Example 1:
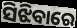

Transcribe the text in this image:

ସିଝିବାରେ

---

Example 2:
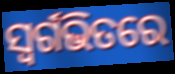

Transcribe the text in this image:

ସ୍ଵର୍ଗଭିତରେ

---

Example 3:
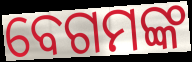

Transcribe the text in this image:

ବେଗମଙ୍କ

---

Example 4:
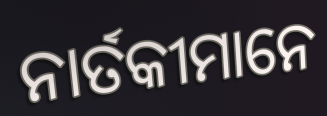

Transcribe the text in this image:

ନାର୍ତକୀମାନେ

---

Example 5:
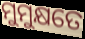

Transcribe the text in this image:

ମୁମୁକ୍ଷତେ